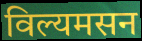
विल्यमसन